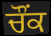
ਚੌਂਕ